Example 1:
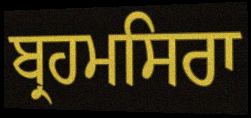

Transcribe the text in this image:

ਬ੍ਰਹਮਸਿਰਾ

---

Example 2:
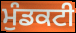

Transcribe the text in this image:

ਮੁੰਡਕਟੀ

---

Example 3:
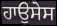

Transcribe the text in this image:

ਹਾਉਸੇਸ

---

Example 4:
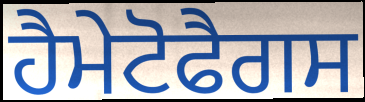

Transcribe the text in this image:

ਹੈਮੇਟੋਫੈਗਸ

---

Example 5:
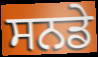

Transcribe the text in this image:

ਸਨਡੇ